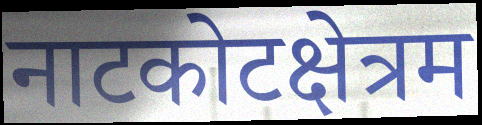
नाटकोटक्षेत्रम